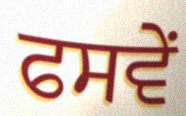
ਫਸਵੇਂ